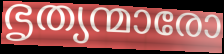
ഭൃത്യന്മാരോ